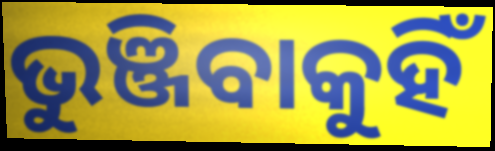
ଭୁଞ୍ଜିବାକୁହିଁ